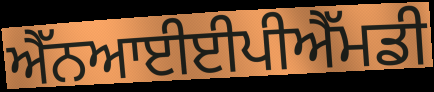
ਐੱਨਆਈਈਪੀਐੱਮਡੀ